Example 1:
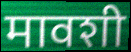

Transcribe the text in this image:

मावशी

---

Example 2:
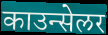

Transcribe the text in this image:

काउन्सेलर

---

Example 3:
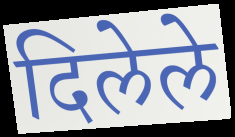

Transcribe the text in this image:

दिलेले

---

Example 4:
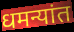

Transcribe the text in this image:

धमन्यांत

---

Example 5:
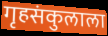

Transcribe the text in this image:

गृहसंकुलाला